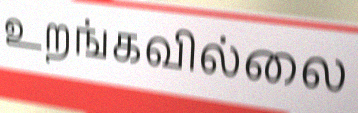
உறங்கவில்லை